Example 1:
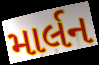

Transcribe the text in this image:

માર્લન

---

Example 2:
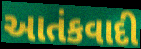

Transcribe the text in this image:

આતંકવાદી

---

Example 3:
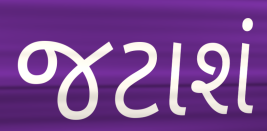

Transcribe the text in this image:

જટાશં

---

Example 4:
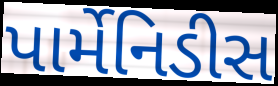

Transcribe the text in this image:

પાર્મેનિડીસ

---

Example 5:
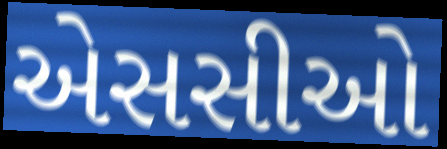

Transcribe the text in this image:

એસસીઓ